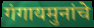
गंगायमुनांचे